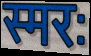
स्मरः